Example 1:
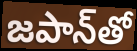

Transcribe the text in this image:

జపాన్‌తో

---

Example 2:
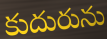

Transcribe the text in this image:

కుదురును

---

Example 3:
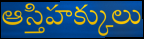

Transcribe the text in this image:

ఆస్తిహక్కులు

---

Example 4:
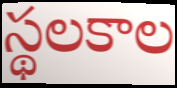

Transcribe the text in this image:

స్థలకాల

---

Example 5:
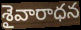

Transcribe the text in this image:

శైవారాధన